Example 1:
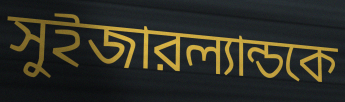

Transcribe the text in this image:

সুইজারল্যান্ডকে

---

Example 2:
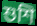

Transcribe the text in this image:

শুশি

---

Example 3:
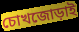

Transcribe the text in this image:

চোখজোড়াই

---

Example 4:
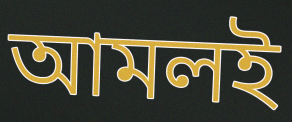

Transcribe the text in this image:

আমলই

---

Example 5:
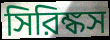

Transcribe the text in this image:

সিরিঙ্কস